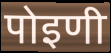
पोइणी